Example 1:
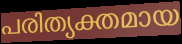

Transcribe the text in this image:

പരിത്യക്തമായ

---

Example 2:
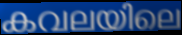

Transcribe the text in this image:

കവലയിലെ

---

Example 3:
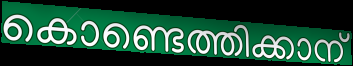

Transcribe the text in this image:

കൊണ്ടെത്തിക്കാന്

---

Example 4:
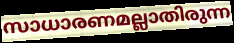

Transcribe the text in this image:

സാധാരണമല്ലാതിരുന്ന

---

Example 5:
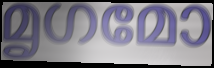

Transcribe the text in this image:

മൃഗമോ